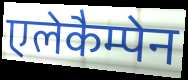
एलेकैम्पेन